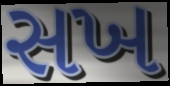
સખ